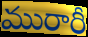
మురారీ